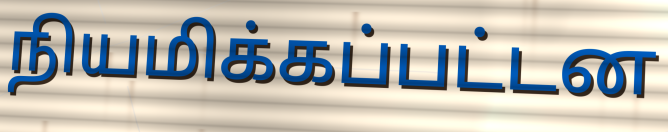
நியமிக்கப்பட்டன